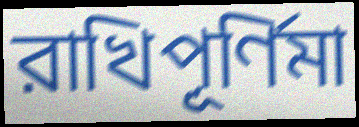
রাখিপূর্ণিমা